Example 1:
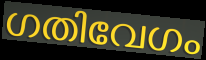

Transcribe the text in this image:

ഗതിവേഗം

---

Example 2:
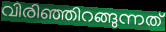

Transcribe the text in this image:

വിരിഞ്ഞിറങ്ങുന്നത്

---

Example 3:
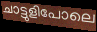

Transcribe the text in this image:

ചാട്ടുളിപോലെ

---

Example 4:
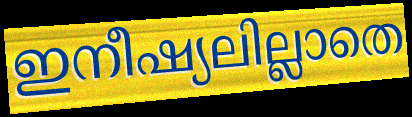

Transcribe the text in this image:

ഇനീഷ്യലില്ലാതെ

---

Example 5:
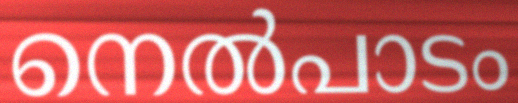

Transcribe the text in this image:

നെൽപാടം